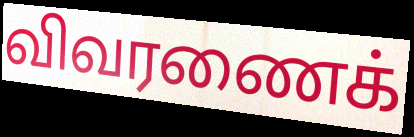
விவரணைக்